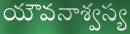
యౌవనాశ్వస్య